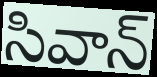
సివాన్